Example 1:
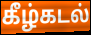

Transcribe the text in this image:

கீழ்கடல்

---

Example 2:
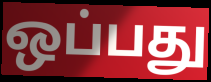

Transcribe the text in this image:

ஒப்பது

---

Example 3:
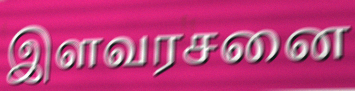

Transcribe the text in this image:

இளவரசனை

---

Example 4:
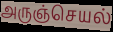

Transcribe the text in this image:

அருஞ்செயல்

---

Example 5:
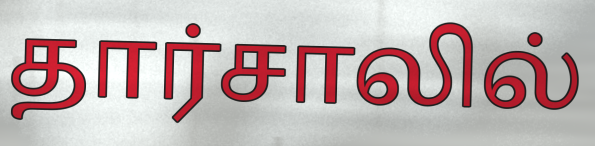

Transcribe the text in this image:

தார்சாலில்